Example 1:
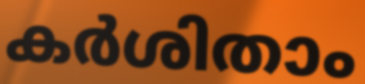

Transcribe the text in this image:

കർശിതാം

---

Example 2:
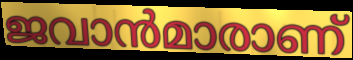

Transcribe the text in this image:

ജവാൻമാരാണ്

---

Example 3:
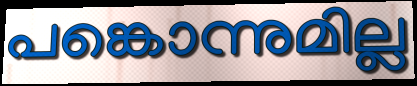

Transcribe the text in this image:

പങ്കൊന്നുമില്ല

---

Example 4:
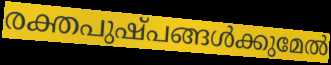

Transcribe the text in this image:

രക്തപുഷ്പങ്ങൾക്കുമേൽ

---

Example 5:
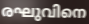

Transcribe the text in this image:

രഘുവിനെ